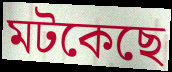
মটকেছে